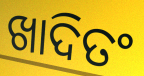
ଖାଦିତଂ